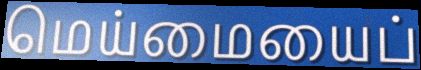
மெய்மையைப்